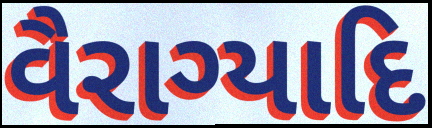
વૈરાગ્યાદિ